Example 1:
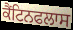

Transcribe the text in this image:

ਕੈਂਟਿਨਫਲਾਸ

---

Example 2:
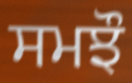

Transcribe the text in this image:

ਸਮਝੌ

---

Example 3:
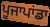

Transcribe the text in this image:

ਪੂਜਾਪਾਂਡਾ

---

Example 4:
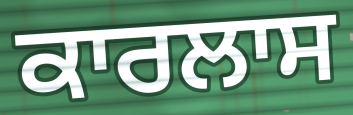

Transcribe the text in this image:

ਕਾਰਲਾਸ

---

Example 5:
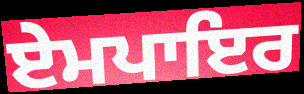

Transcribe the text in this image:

ਏਮਪਾਇਰ